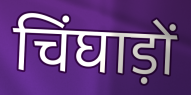
चिंघाड़ों